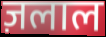
ज़लाल